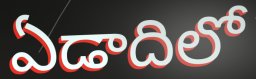
ఏడాదిలో